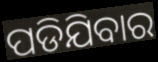
ପଡିଯିବାର